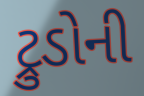
ટ્રુડોની